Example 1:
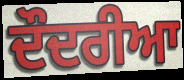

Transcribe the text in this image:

ਦੌਦਰੀਆ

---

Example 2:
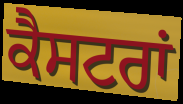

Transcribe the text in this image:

ਕੈਸਟਰਾਂ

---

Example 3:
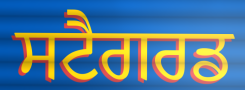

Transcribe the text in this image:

ਸਟੈਗਰਡ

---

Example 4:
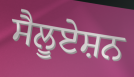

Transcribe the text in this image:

ਸੈਲੂਏਸ਼ਨ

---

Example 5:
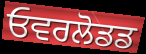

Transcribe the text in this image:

ਓਵਰਲੋਡਡ